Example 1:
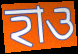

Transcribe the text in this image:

হাও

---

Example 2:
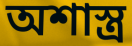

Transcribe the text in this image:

অশাস্ত্র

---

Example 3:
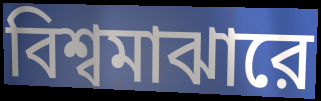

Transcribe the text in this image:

বিশ্বমাঝারে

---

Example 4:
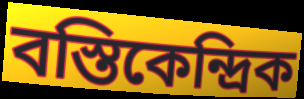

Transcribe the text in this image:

বস্তিকেন্দ্রিক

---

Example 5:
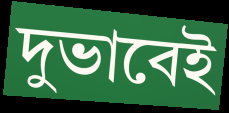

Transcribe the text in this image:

দুভাবেই